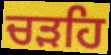
ਚੜਹਿ